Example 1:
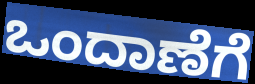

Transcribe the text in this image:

ಒಂದಾಣೆಗೆ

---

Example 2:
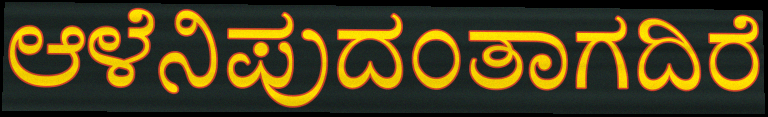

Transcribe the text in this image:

ಆಳೆನಿಪುದಂತಾಗದಿರೆ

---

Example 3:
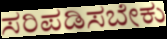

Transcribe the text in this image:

ಸರಿಪಡಿಸಬೇಕು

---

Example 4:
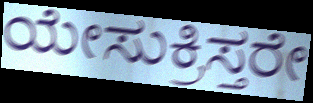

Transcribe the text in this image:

ಯೇಸುಕ್ರಿಸ್ತರೇ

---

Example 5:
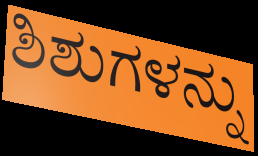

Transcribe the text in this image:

ಶಿಶುಗಳನ್ನು